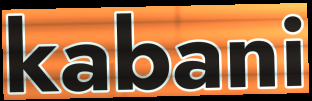
kabani